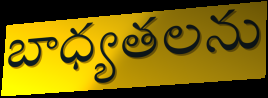
బాధ్యతలను